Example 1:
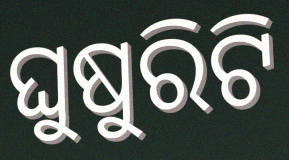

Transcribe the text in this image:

ଘୁଷୁରିଟି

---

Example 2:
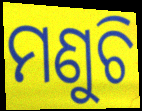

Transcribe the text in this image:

ମଣୁଚି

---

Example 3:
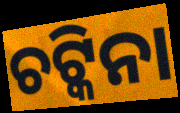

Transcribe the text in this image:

ଚଟ୍କିନା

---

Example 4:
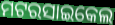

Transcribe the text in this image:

ମଟରସାଇକେଲ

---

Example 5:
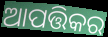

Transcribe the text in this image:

ଆପତ୍ତିକର